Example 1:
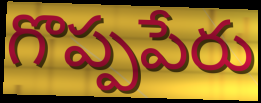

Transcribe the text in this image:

గొప్పపేరు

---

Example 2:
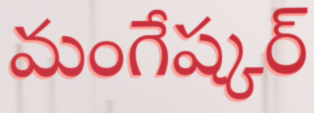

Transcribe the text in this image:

మంగేష్కర్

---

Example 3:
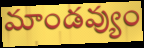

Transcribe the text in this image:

మాండవ్యుం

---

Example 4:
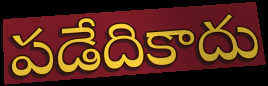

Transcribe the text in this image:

పడేదికాదు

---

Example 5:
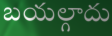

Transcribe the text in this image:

బయల్గాదు